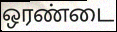
ஒரண்டை